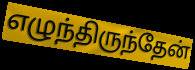
எழுந்திருந்தேன்